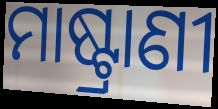
ମାଷ୍ଟ୍ରାଣୀ